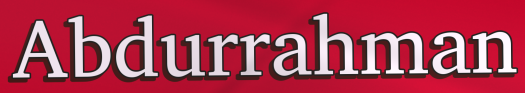
Abdurrahman